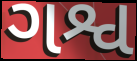
ગશ્વ